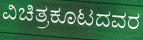
ವಿಚಿತ್ರಕೂಟದವರ